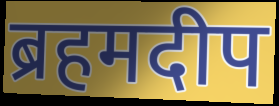
ब्रहमदीप